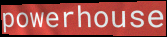
powerhouse